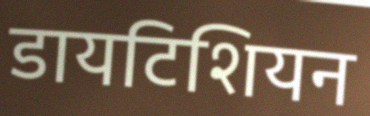
डायटिशियन